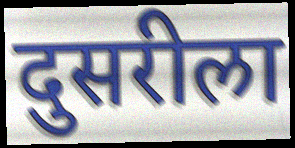
दुसरीला